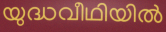
യുദ്ധവീഥിയിൽ